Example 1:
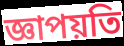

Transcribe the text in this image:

জ্ঞাপয়তি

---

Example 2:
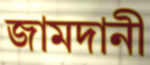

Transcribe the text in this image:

জামদানী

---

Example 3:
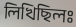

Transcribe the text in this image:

লিখিছিলঃ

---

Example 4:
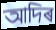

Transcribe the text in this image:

আদিৰ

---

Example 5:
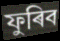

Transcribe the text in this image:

ফুৰিব